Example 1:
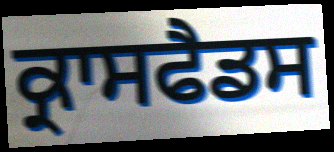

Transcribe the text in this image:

ਕ੍ਰਾਸਫੈਡਸ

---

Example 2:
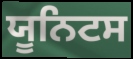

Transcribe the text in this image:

ਯੂਨਿਟਸ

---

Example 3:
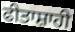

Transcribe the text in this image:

ਫੀਤਾਸ਼ਾਹੀ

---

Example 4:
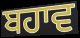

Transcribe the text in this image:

ਬਹਾਵ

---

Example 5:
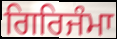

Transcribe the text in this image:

ਗਿਰਿਜੰਮਾ